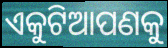
ଏକୁଟିଆପଣକୁ